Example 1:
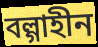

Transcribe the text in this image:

বল্গাহীন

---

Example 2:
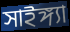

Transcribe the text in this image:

সাইঙ্গ্যা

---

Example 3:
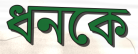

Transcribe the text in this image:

ধনকে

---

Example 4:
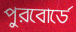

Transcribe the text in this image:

পুরবোর্ডে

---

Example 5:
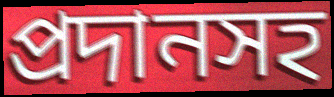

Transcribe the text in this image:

প্রদানসহ